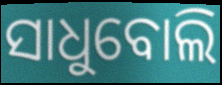
ସାଧୁବୋଲି